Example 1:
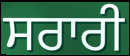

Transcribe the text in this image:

ਸਰਾਰੀ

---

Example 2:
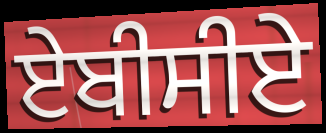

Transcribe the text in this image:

ਏਬੀਸੀਏ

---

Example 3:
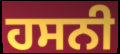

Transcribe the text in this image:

ਹਸਨੀ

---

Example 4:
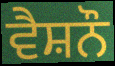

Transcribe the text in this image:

ਵੈਸ਼ਨੌ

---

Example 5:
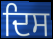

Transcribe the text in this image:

ਦਿਸ